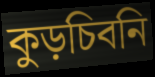
কুড়চিবনি